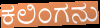
ಕಲಿಂಗನು